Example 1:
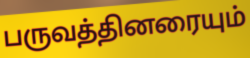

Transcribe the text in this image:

பருவத்தினரையும்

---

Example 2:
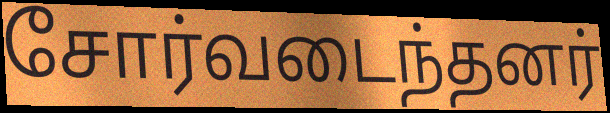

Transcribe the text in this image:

சோர்வடைந்தனர்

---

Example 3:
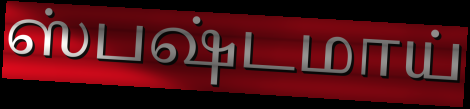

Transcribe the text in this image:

ஸ்பஷ்டமாய்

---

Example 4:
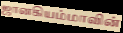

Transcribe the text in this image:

ஜானகியம்மாவின்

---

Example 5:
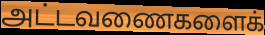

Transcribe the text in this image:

அட்டவணைகளைக்